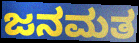
ಜನಮತ